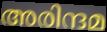
അരിന്ദമ